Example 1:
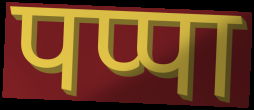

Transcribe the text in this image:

पप्‍पा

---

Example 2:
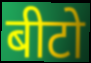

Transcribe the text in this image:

बीटो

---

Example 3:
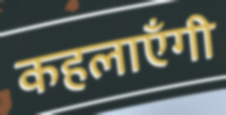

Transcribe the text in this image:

कहलाएँगी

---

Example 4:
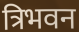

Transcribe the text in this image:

त्रिभवन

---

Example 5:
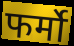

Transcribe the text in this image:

फर्मो